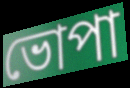
ভোপা